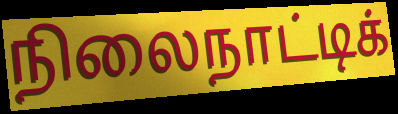
நிலைநாட்டிக்